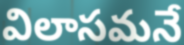
విలాసమనే